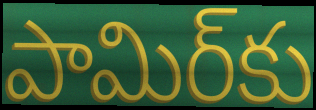
పామిర్‌కు